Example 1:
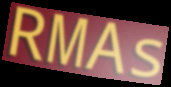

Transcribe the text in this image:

RMAs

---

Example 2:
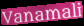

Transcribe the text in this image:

Vanamali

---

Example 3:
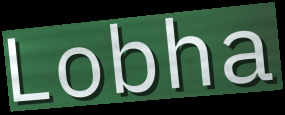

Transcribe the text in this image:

Lobha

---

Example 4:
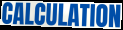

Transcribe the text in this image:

CALCULATION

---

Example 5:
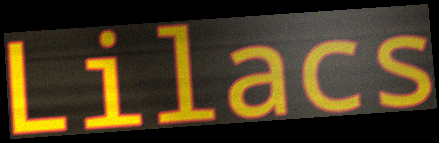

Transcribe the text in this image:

Lilacs